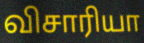
விசாரியா